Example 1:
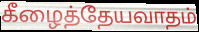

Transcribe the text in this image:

கீழைத்தேயவாதம்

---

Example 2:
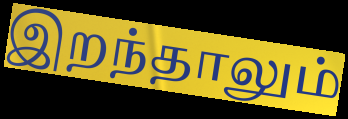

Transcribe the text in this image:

இறந்தாலும்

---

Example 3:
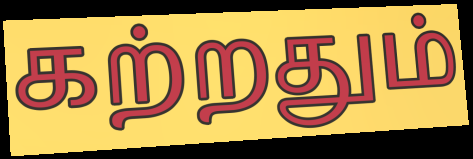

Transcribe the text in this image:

கற்றதும்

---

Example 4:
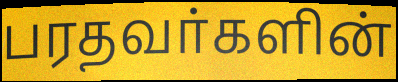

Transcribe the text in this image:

பரதவர்களின்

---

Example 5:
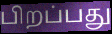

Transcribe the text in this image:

பிறப்பது